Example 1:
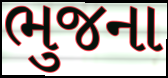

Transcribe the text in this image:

ભુજના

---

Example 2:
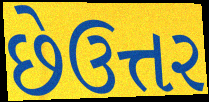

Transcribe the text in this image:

છેઉત્તર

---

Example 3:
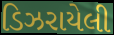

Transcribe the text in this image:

ડિઝરાયેલી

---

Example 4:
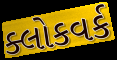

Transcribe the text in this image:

ક્લોકવર્ક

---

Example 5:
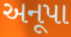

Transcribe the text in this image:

અનૂપા